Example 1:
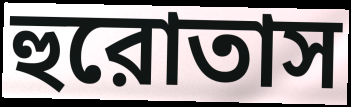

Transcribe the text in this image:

হুরোতাস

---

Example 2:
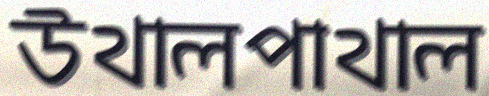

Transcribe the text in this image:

উথালপাথাল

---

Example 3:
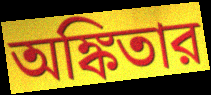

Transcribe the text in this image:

অঙ্কিতার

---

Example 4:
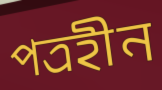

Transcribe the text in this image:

পত্রহীন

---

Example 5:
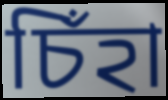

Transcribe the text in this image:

চিঁহা